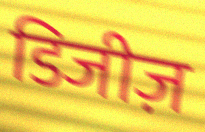
डिजीज़